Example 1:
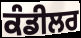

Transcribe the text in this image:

ਕੰਡੀਲਰ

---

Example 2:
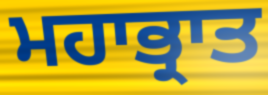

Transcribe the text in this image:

ਮਹਾਭ੍ਰਾਤ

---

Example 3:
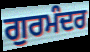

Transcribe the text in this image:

ਗੁਰਮੰਦਰ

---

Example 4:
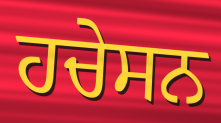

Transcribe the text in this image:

ਹਚੇਸਨ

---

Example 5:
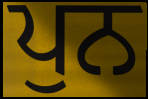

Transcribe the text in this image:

ਪੁਨ